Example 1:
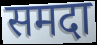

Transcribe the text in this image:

समदा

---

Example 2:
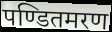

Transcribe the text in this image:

पण्डितमरण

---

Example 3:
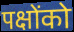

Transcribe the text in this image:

पक्षोंको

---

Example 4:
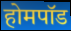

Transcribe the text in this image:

होमपॉड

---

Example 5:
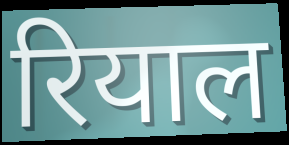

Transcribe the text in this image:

रियाल